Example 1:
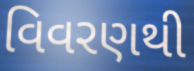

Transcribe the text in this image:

વિવરણથી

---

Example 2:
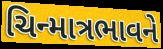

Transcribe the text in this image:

ચિન્માત્રભાવને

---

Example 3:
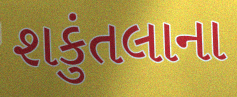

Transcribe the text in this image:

શકુંતલાના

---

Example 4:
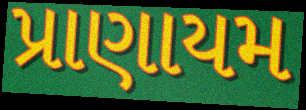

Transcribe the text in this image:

પ્રાણાયમ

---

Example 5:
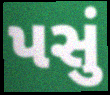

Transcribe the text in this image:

પસું